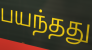
பயந்தது